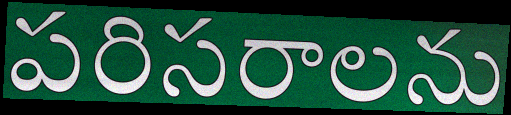
పరిసరాలను